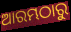
ଆରମ୍ଭଠାରୁ